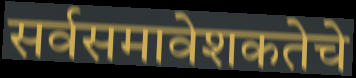
सर्वसमावेशकतेचे